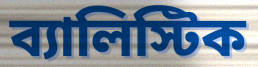
ব্যালিস্টিক